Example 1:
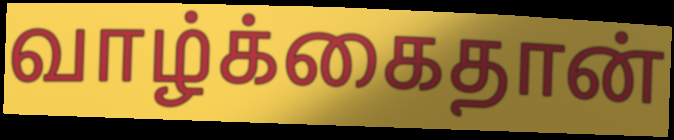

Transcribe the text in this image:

வாழ்க்கைதான்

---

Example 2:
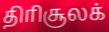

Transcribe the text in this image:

திரிசூலக்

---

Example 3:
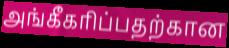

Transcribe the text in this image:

அங்கீகரிப்பதற்கான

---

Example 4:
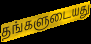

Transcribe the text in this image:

தங்களுடையது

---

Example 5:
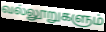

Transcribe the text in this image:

வல்லூறுகளும்